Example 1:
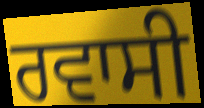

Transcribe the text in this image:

ਰਵਾਸੀ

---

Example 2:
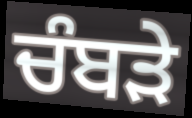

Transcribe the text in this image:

ਚੰਬੜੇ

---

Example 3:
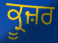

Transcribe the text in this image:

ਕ੍ਰੂਜ਼ਰ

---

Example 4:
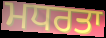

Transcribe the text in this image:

ਮਧਰਤਾ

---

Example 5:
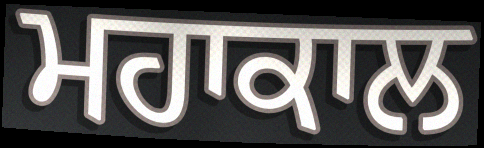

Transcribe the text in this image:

ਮਹਾਕਾਲ